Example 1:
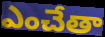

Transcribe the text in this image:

ఎంచేతా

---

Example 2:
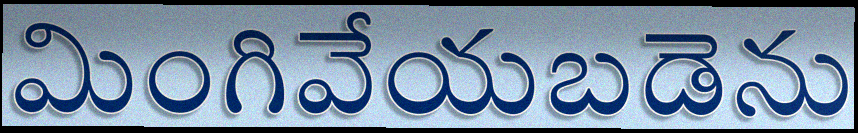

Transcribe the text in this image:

మింగివేయబడెను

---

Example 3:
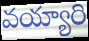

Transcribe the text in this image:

వయ్యారి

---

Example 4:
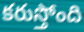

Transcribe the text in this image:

కరుస్తోంది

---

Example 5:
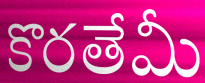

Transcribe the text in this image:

కొరతేమీ